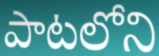
పాటలోని